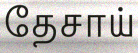
தேசாய்